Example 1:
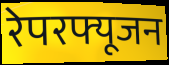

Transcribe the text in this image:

रेपरफ्यूजन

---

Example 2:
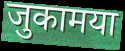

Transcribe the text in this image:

जुकामया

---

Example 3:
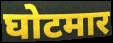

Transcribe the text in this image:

घोटमार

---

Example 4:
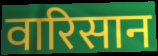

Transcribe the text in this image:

वारिसान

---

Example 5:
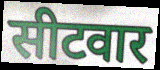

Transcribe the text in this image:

सीटवार